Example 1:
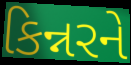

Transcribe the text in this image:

કિન્નરને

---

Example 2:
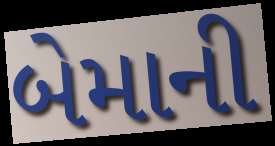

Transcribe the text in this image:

બેમાની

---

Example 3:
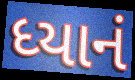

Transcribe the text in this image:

ધ્યાનં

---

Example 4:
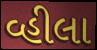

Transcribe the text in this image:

વ્હીલા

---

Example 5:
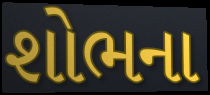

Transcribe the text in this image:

શોભના